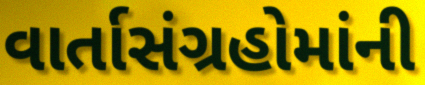
વાર્તાસંગ્રહોમાંની